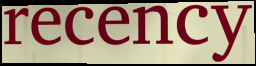
recency